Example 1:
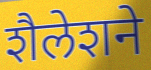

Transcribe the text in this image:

शैलेशने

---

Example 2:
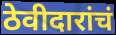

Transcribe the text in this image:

ठेवीदारांचं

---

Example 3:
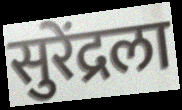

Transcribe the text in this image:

सुरेंद्रला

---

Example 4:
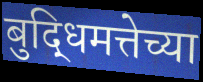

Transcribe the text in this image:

बुद्धिमत्तेच्या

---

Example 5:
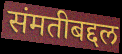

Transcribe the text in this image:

संमतीबद्दल